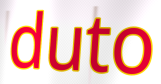
duto